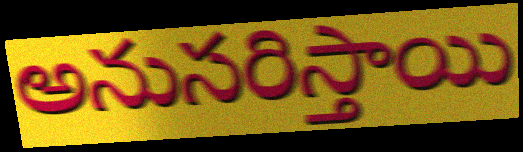
అనుసరిస్తాయి